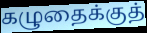
கழுதைக்குத்